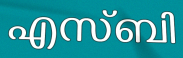
എസ്ബി